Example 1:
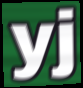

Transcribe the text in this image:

yj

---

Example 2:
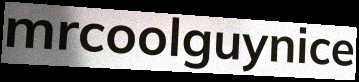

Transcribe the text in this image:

mrcoolguynice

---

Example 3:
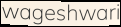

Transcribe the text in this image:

wageshwari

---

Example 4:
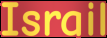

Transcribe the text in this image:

Israil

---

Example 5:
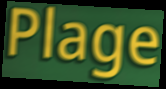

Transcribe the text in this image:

Plage